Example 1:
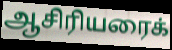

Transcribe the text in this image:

ஆசிரியரைக்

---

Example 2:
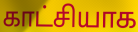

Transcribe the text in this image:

காட்சியாக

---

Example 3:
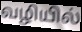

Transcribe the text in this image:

வழியில்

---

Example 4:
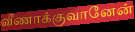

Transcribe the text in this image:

வீணாக்குவானேன்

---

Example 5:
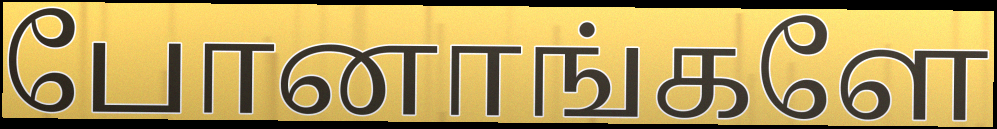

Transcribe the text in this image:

போனாங்களே